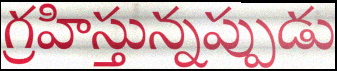
గ్రహిస్తున్నప్పుడు